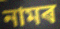
নামৰ